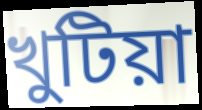
খুটিয়া